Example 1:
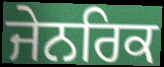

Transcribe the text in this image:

ਜੇਨਰਿਕ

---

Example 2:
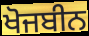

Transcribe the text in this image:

ਖੋਜਬੀਨ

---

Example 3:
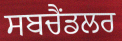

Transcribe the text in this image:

ਸਬਚੈਂਡਲਰ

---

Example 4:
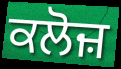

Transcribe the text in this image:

ਕਲੋਜ਼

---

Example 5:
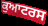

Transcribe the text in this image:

ਕੁਆਟਰਸ